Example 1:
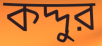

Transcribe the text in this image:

কদ্দুর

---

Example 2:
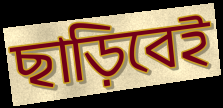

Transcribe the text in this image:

ছাড়িবেই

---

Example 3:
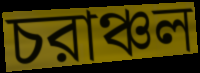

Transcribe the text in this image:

চরাঞ্চল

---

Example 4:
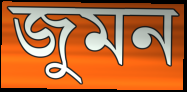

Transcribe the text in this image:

জুমন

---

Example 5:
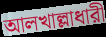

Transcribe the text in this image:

আলখাল্লাধারী